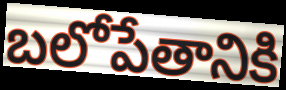
బలోపేతానికి